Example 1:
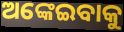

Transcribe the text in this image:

ଅଙ୍କେଇବାକୁ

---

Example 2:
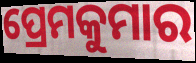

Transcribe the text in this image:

ପ୍ରେମକୁମାର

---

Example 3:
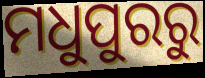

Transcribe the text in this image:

ମଧୁପୁରରୁ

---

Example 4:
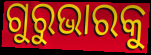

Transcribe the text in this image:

ଗୁରୁଭାରକୁ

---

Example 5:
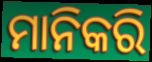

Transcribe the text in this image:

ମାନିକରି